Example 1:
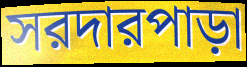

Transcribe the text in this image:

সরদারপাড়া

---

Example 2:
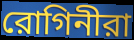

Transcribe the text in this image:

রোগিনীরা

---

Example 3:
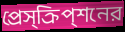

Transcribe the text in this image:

প্রেস্‌ক্রিপ্‌শনের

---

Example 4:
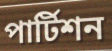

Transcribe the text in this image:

পার্টিশন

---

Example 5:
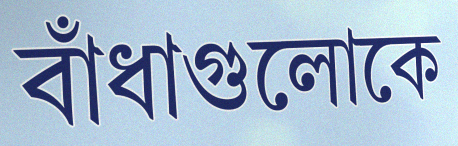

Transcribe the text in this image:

বাঁধাগুলোকে